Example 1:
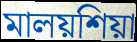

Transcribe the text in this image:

মালয়শিয়া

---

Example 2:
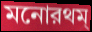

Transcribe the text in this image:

মনোরথম্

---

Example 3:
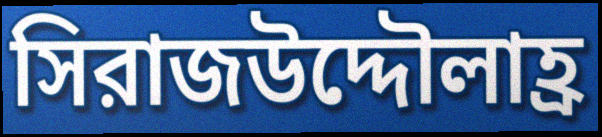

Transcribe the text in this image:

সিরাজউদ্দৌলাহ্র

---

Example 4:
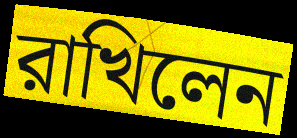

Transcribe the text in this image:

রাখিলেন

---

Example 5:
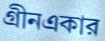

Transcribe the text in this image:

গ্রীনএকার